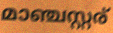
മാഞ്ചസ്റ്റര്